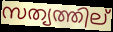
സത്യത്തില്